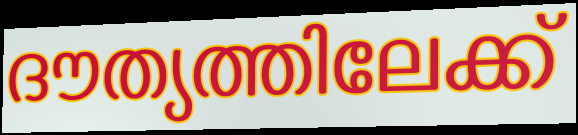
ദൗത്യത്തിലേക്ക്